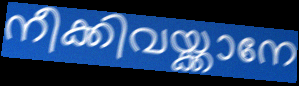
നീക്കിവയ്ക്കാനേ